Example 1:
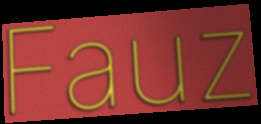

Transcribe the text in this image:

Fauz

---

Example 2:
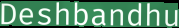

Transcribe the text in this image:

Deshbandhu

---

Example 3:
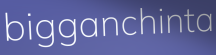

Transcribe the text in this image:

bigganchinta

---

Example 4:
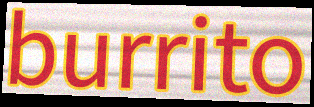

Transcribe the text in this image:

burrito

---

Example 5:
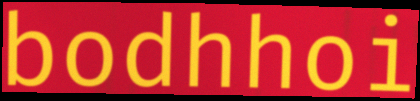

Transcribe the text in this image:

bodhhoi